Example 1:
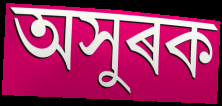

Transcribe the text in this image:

অসুৰক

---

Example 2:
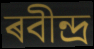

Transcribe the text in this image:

ৰবীন্দ্ৰ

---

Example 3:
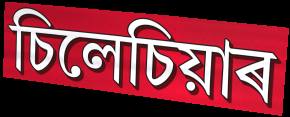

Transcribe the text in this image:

চিলেচিয়াৰ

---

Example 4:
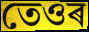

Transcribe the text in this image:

তেওৰ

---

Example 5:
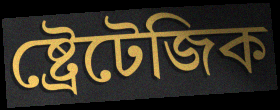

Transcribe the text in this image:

ষ্ট্ৰেটেজিক